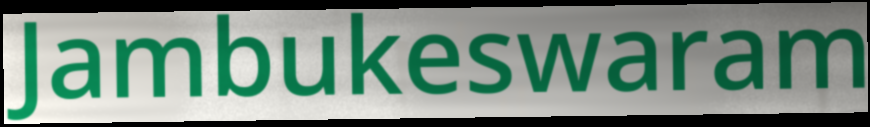
Jambukeswaram